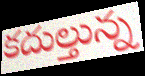
కదుల్తున్న